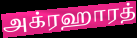
அக்ரஹாரத்